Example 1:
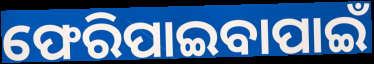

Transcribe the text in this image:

ଫେରିପାଇବାପାଇଁ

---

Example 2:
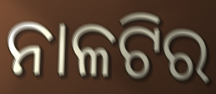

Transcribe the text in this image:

ନାଳଟିର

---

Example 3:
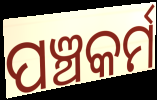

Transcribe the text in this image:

ପଞ୍ଚକର୍ମ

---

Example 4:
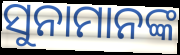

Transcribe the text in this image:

ସୁନାମାନଙ୍କ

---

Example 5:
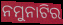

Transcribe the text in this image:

ନମୁନାଟିର